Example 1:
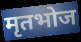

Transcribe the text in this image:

मृतभोज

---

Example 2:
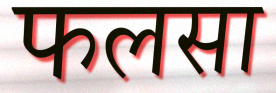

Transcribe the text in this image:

फलसा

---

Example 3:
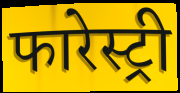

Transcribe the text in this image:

फारेस्ट्री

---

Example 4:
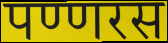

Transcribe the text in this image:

पण्णरस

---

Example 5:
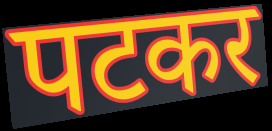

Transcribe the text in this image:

पटकर